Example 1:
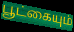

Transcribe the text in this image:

பூட்கையும்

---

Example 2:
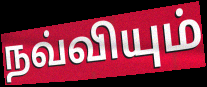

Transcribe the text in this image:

நவ்வியும்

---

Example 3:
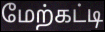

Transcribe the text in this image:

மேற்கட்டி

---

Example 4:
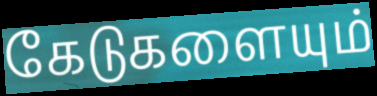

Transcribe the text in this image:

கேடுகளையும்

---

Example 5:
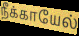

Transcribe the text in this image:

நீக்காயேல்